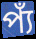
প্যঁ